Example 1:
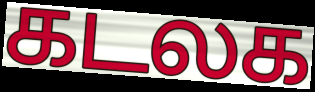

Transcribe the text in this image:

கடலக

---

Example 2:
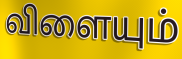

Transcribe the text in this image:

விளையும்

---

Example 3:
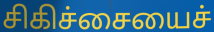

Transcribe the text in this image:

சிகிச்சையைச்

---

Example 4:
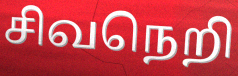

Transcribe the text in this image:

சிவநெறி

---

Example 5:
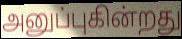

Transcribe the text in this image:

அனுப்புகின்றது